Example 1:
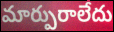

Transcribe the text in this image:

మార్పురాలేదు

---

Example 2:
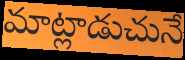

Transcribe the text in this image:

మాట్లాడుచునే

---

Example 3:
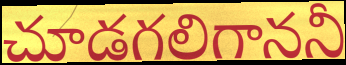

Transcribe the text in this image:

చూడగలిగాననీ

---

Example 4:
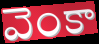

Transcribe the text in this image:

వెంకా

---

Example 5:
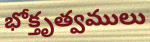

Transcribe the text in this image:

భోక్తృత్వములు